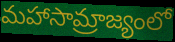
మహాసామ్రాజ్యంలో